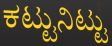
ಕಟ್ಟುನಿಟ್ಟು